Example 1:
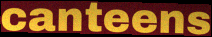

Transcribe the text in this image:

canteens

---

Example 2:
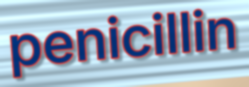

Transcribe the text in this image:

penicillin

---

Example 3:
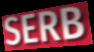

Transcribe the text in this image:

SERB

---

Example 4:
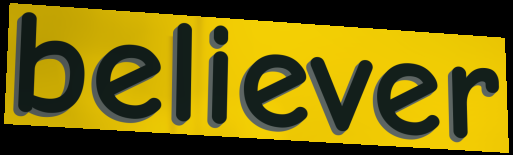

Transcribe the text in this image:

believer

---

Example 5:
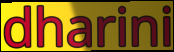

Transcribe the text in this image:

dharini